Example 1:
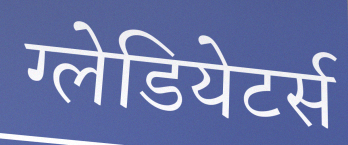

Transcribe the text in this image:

ग्लेडियेटर्स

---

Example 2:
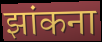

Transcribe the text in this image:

झांकना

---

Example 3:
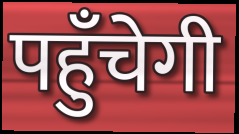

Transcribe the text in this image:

पहुँचेगी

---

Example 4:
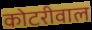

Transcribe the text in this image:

कोटरीवाल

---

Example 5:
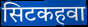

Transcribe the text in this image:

सिटकहवा